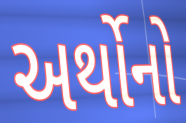
અર્થોનો